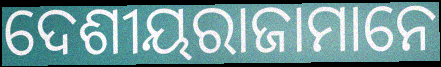
ଦେଶୀୟରାଜାମାନେ